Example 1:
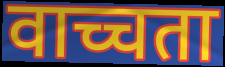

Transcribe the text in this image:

वाच्चता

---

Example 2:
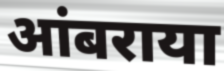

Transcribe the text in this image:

आंबराया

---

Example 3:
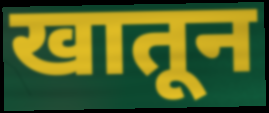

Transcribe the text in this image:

खातून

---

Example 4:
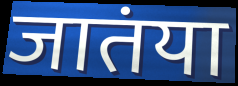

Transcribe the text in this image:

जातंया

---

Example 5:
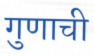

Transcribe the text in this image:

गुणाची